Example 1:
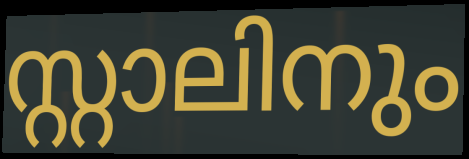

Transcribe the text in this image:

സ്റ്റാലിനും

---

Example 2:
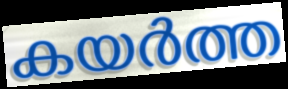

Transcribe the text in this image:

കയർത്ത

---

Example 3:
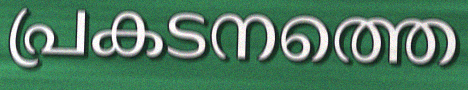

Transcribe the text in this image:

പ്രകടനത്തെ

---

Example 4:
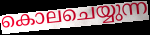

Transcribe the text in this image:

കൊലചെയ്യുന്ന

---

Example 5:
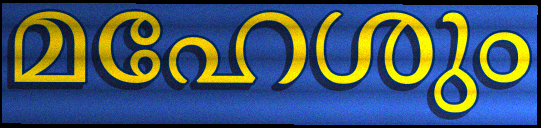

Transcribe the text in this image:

മഹേശും